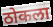
ठोकला